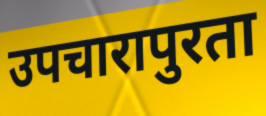
उपचारापुरता